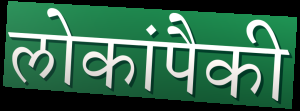
लोकांपैकी